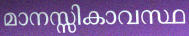
മാനസ്സികാവസ്ഥ